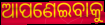
ଆପଣେଇବାକୁ